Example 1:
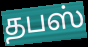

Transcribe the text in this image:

தபஸ்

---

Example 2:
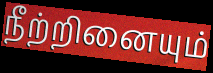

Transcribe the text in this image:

நீற்றினையும்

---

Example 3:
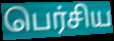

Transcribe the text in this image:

பெர்சிய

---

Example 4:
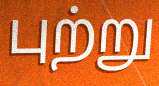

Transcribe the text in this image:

புற்று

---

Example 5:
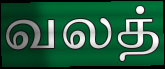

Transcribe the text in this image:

வலத்